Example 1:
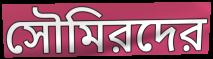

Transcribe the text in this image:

সৌমিরদের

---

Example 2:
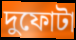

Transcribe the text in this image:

দুফোটা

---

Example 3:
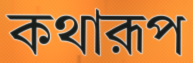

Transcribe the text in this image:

কথারূপ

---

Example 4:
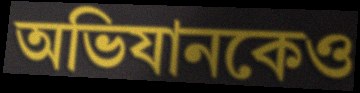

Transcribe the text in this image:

অভিযানকেও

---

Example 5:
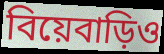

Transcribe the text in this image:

বিয়েবাড়িও